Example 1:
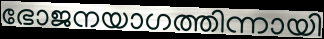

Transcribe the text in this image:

ഭോജനയാഗത്തിന്നായി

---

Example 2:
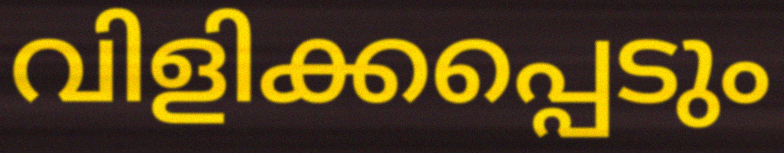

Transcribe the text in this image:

വിളിക്കപ്പെടും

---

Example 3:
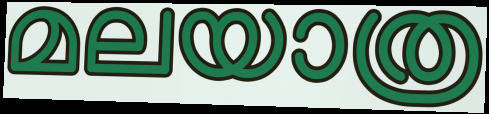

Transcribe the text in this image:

മലയാത്ര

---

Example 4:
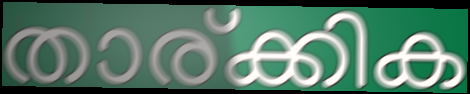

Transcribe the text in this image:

താര്ക്കിക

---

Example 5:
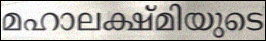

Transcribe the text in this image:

മഹാലക്ഷ്മിയുടെ